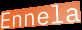
Ennela